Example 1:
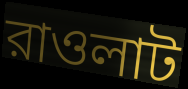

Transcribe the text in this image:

রাওলাট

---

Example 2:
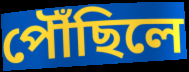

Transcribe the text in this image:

পৌঁছিলে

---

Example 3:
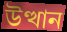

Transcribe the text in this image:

উত্থান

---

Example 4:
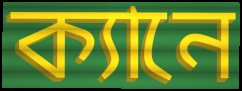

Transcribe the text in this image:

ক্যানে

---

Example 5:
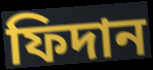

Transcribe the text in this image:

ফিদান